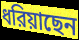
ধরিয়াছেন